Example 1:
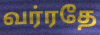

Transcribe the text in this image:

வர்ரதே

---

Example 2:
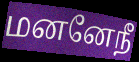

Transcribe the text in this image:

மனனேநீ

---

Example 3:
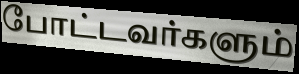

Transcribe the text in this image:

போட்டவர்களும்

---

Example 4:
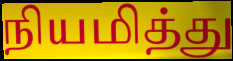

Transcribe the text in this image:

நியமித்து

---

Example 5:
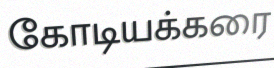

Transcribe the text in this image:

கோடியக்கரை